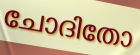
ചോദിതോ